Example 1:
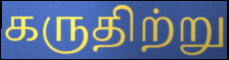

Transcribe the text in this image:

கருதிற்று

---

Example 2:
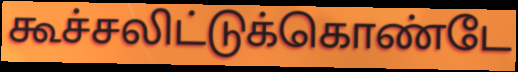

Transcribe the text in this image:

கூச்சலிட்டுக்கொண்டே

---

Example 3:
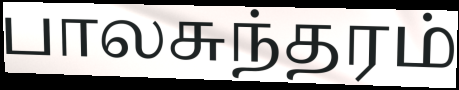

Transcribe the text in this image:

பாலசுந்தரம்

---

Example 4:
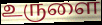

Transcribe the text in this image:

உருளை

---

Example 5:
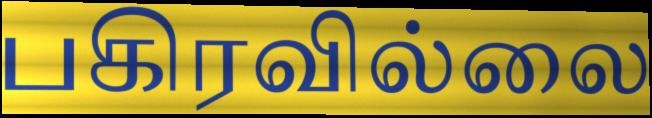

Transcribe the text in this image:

பகிரவில்லை